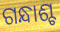
ଗନ୍ଧାଶ୍ଚ